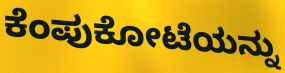
ಕೆಂಪುಕೋಟೆಯನ್ನು